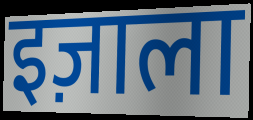
इज़ाला